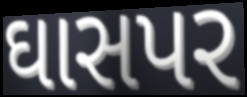
ઘાસપર